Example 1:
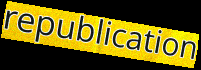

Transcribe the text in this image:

republication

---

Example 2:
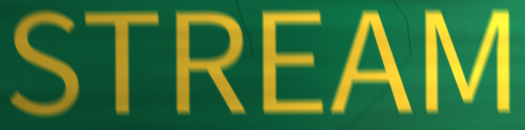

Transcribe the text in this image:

STREAM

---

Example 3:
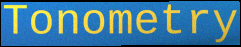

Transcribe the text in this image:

Tonometry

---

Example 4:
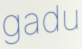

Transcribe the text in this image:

gadu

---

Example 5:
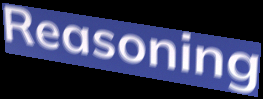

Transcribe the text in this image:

Reasoning